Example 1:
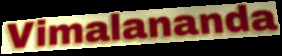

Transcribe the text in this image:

Vimalananda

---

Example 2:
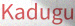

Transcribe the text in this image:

Kadugu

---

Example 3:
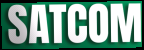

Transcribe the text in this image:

SATCOM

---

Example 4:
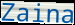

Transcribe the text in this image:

Zaina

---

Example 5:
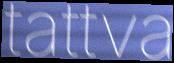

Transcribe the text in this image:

tattva